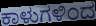
ಕಾಳುಗಳಿಂದ